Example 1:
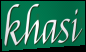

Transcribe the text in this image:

khasi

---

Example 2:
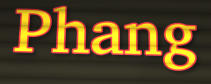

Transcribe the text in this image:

Phang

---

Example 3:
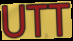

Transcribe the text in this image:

UTT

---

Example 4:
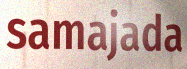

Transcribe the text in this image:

samajada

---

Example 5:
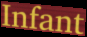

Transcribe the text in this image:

Infant